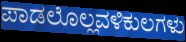
ಪಾಡಲೊಲ್ಲವಳಿಕುಲಗಳು